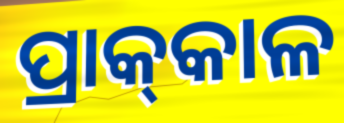
ପ୍ରାକ୍‌କାଳ